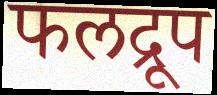
फलद्रूप